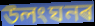
উলংঘনৰ